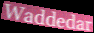
Waddedar